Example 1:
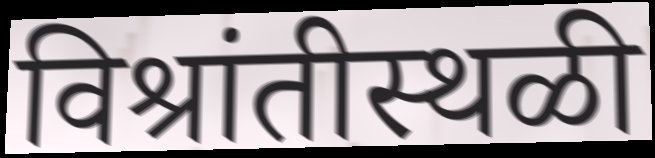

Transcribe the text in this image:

विश्रांतीस्थळी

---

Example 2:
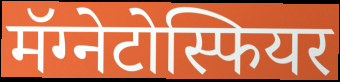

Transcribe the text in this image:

मॅग्नेटोस्फियर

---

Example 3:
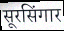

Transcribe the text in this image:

सूरसिंगार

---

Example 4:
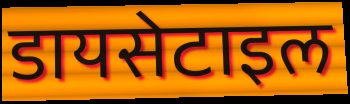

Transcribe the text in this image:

डायसेटाइल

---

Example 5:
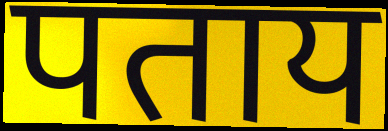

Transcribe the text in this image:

पताय